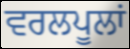
ਵਰਲਪੂਲਾਂ